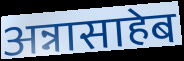
अन्नासाहेब